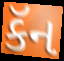
કૅન